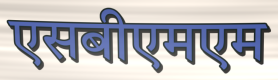
एसबीएमएम